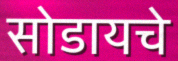
सोडायचे